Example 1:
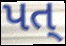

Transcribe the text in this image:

પત્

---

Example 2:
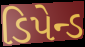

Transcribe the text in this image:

ડિપેન્ડ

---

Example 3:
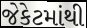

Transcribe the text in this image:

જેકેટમાંથી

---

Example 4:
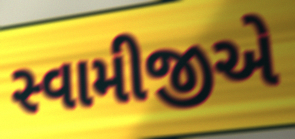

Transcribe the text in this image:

સ્વામીજીએ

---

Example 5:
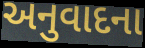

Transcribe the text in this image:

અનુવાદના